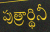
పుత్రార్థినీ